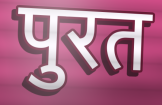
पुरत